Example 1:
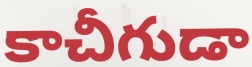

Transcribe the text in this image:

కాచీగుడా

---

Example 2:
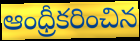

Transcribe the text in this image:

ఆంధ్రీకరించిన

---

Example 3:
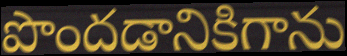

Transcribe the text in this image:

పొందడానికిగాను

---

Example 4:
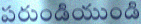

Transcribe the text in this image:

పరుండియుండి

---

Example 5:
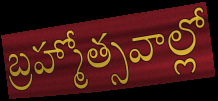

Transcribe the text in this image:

బ్రహ్మోత్సవాల్లో